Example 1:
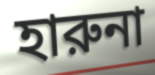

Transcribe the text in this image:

হারুনা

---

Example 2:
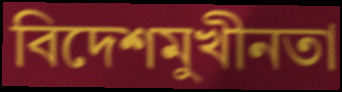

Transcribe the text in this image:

বিদেশমুখীনতা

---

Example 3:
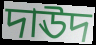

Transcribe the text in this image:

দাঊদ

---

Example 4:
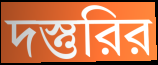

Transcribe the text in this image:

দস্তুরির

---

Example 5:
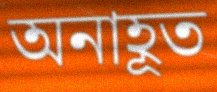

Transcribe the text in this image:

অনাহূত